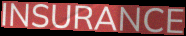
INSURANCE